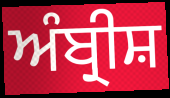
ਅੰਬ੍ਰੀਸ਼